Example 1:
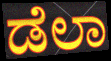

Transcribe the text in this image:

ಡೆಲಾ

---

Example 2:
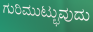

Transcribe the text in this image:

ಗುರಿಮುಟ್ಟುವುದು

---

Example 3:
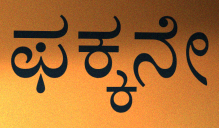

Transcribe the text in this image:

ಫಕ್ಕನೇ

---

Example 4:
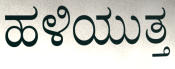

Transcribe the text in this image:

ಹಳಿಯುತ್ತ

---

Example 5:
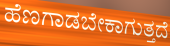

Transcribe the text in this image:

ಹೆಣಗಾಡಬೇಕಾಗುತ್ತದೆ